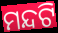
ମନ୍ଦଟି